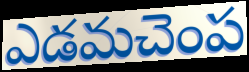
ఎడమచెంప